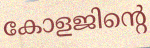
കോളജിന്റെ